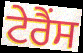
ਟੇਰੈਂਸ